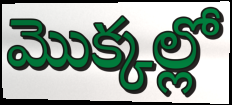
మొక్కల్లో